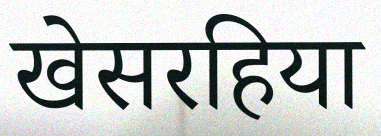
खेसरहिया